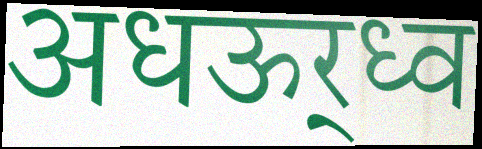
अधऊर्ध्व